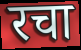
रचा